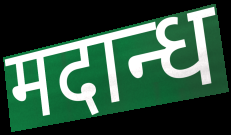
मदान्ध